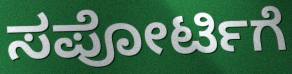
ಸಪೋರ್ಟಿಗೆ